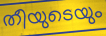
തീയുടെയും